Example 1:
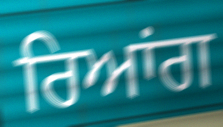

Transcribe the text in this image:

ਰਿਆਂਗ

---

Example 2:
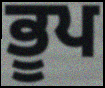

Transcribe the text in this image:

ਭੂਪ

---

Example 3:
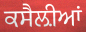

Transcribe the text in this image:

ਕਸੈਲ਼ੀਆਂ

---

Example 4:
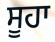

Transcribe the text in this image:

ਸੂਹਾ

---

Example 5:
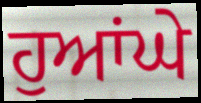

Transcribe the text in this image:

ਹੁਆਂਘੇ